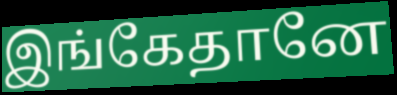
இங்கேதானே